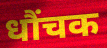
धौंचक